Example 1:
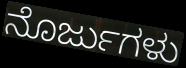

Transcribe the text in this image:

ನೊರ್ಜುಗಳು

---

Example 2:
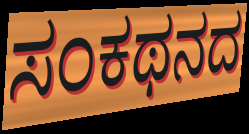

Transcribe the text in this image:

ಸಂಕಥನದ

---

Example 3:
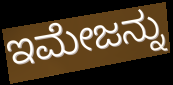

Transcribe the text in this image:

ಇಮೇಜನ್ನು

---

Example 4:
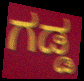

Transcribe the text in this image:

ಗಡ್ಡ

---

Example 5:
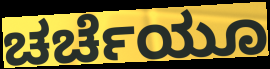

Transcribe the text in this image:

ಚರ್ಚೆಯೂ